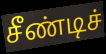
சீண்டிச்